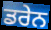
ਡਰੇਨ